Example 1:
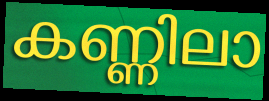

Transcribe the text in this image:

കണ്ണിലാ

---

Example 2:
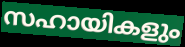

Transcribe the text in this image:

സഹായികളും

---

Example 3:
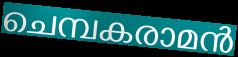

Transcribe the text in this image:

ചെമ്പകരാമൻ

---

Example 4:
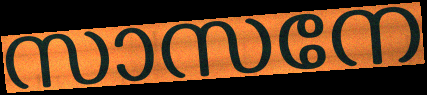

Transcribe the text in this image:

സാസനേ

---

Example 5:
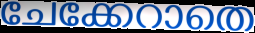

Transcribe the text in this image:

ചേക്കേറാതെ